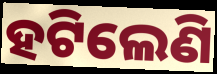
ହଟିଲେଣି